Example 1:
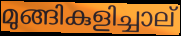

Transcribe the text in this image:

മുങ്ങികുളിച്ചാല്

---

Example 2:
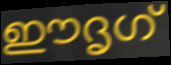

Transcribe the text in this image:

ഈദൃഗ്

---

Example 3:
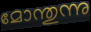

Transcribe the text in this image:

മോന്തുന്നു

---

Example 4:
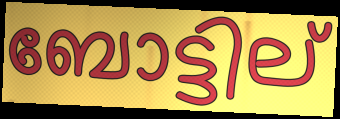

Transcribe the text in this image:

ബോട്ടില്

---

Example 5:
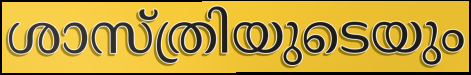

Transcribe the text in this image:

ശാസ്ത്രിയുടെയും